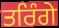
ਤਰਿੰਗੇ